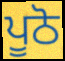
ਪੂਠੋ